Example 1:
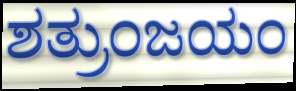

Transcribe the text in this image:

ಶತ್ರುಂಜಯಂ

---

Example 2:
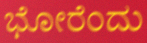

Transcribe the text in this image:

ಭೋರೆಂದು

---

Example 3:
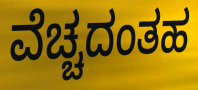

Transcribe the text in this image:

ವೆಚ್ಚದಂತಹ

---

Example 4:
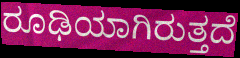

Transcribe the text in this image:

ರೂಢಿಯಾಗಿರುತ್ತದೆ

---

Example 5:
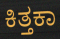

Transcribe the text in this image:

ಕಿತ್ತಕಾ